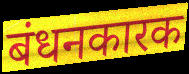
बंधनकारक